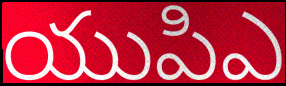
యుపిఎ